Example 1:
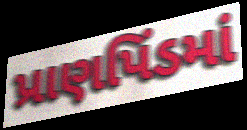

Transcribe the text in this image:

પ્રાણપિંડમાં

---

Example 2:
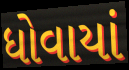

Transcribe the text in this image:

ધોવાયાં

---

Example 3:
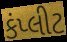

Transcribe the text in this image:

કંપ્લીટ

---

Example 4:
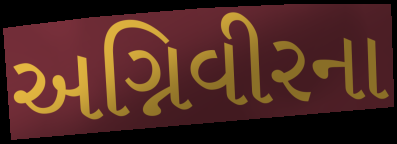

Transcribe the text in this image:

અગ્નિવીરના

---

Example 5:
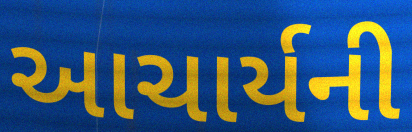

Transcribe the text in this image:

આચાર્યની